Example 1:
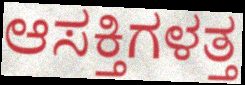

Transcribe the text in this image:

ಆಸಕ್ತಿಗಳತ್ತ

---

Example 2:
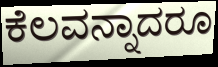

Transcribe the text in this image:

ಕೆಲವನ್ನಾದರೂ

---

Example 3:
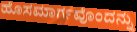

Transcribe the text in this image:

ಹೊಸಮಾರ್ಗವೊಂದನ್ನು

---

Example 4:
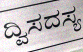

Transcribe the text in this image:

ದ್ವಿಸದಸ್ಯ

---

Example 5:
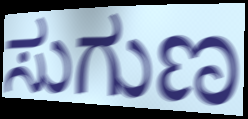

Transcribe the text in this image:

ಸುಗುಣ